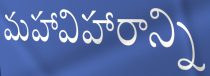
మహావిహారాన్ని